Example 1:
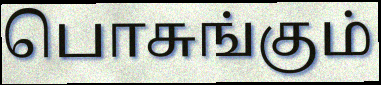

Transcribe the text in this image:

பொசுங்கும்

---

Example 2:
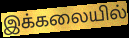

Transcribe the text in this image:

இக்கலையில்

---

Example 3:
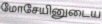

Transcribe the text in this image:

மோசேயினுடைய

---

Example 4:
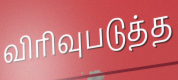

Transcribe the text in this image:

விரிவுபடுத்த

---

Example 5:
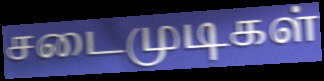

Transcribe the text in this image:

சடைமுடிகள்